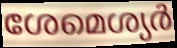
ശേമെശ്യർ